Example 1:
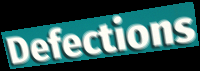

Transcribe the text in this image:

Defections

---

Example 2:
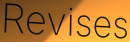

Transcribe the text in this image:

Revises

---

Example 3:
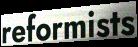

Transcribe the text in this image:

reformists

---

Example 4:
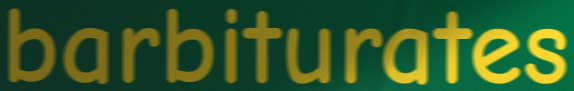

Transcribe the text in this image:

barbiturates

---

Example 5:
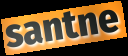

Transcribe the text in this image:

santne